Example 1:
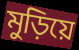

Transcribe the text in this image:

মুড়িয়ে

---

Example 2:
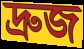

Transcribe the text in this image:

দ্রুজ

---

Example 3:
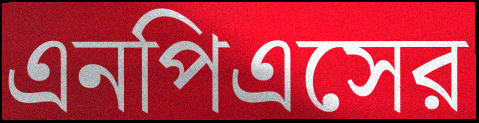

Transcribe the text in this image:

এনপিএসের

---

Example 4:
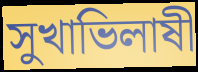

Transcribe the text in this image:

সুখাভিলাষী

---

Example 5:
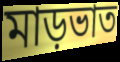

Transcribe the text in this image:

মাড়ভাত